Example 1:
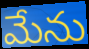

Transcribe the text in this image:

మేను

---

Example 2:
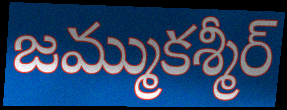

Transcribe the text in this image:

జమ్ముకశ్మీర్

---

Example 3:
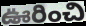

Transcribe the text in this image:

ఊరించి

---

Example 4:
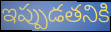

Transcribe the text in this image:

ఇప్పుడతనికి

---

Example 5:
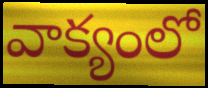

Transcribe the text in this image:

వాక్యంలో